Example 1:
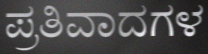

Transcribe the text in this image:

ಪ್ರತಿವಾದಗಳ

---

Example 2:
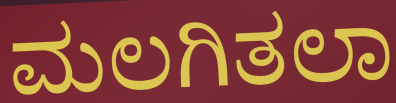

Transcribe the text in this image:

ಮಲಗಿತಲಾ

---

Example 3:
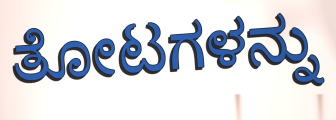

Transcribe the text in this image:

ತೋಟಗಳನ್ನು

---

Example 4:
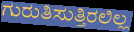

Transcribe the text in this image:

ಗುರುತಿಸುತ್ತಿರಲಿಲ್ಲ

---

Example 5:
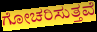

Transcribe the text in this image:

ಗೋಚರಿಸುತ್ತವೆ